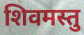
शिवमस्तु